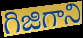
గిజిగాని